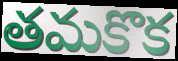
తమకొక